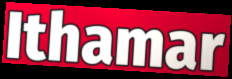
Ithamar